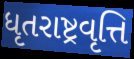
ધૃતરાષ્ટ્રવૃત્તિ